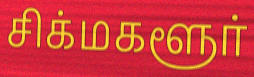
சிக்மகளூர்